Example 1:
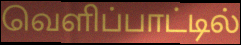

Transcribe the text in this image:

வெளிப்பாட்டில்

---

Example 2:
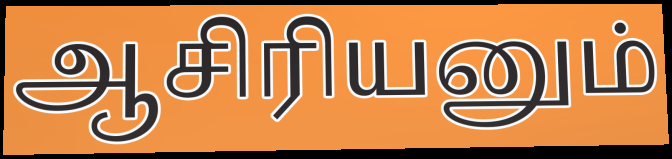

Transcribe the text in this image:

ஆசிரியனும்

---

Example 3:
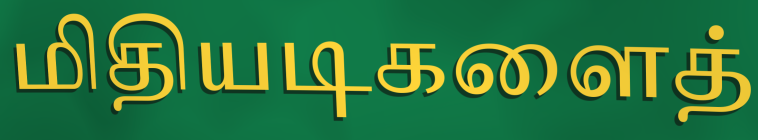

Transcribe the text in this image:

மிதியடிகளைத்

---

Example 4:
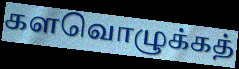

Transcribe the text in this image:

களவொழுக்கத்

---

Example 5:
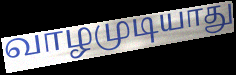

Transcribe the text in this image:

வாழமுடியாது